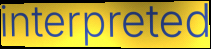
interpreted